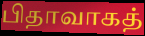
பிதாவாகத்